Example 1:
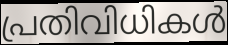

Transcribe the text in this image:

പ്രതിവിധികൾ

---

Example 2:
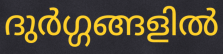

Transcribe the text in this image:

ദുർഗ്ഗങ്ങളിൽ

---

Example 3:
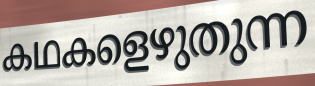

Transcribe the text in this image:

കഥകളെഴുതുന്ന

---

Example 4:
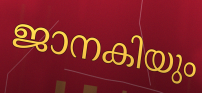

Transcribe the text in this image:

ജാനകിയും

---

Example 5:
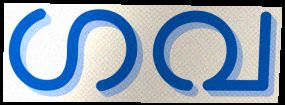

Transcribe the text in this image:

ഗവ